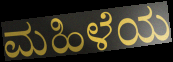
ಮಹಿಳೆಯ